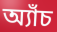
অ্যাঁচ